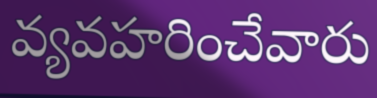
వ్యవహరించేవారు